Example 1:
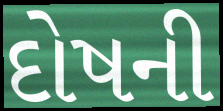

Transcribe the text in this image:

દોષની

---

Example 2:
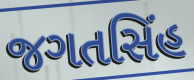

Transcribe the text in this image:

જગતસિંહ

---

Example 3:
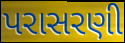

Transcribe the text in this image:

પરાસરણી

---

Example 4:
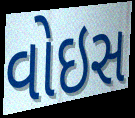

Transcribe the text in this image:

વોઇસ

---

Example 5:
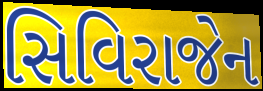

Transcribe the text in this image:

સિવિરાજેન